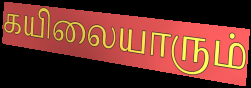
கயிலையாரும்